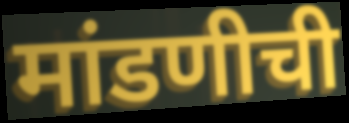
मांडणीची